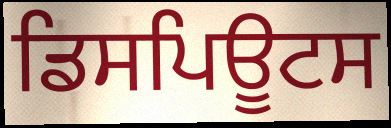
ਡਿਸਪਿਊਟਸ